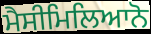
ਮੈਸੀਮਿਲਿਆਨੋ